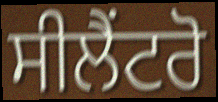
ਸੀਲੈਂਟਰੋ